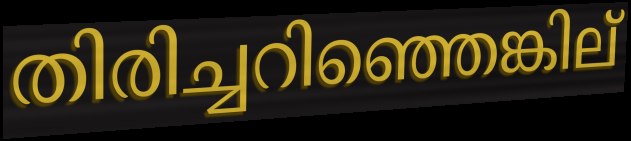
തിരിച്ചറിഞ്ഞെങ്കില്